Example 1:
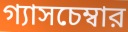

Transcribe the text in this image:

গ্যাসচেম্বার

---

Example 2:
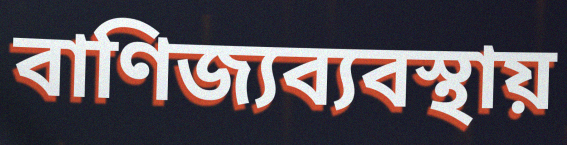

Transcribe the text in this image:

বাণিজ্যব্যবস্থায়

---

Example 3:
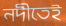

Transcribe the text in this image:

নদীতেই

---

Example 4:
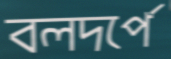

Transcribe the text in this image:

বলদর্পে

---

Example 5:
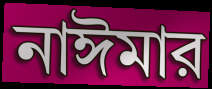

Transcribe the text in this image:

নাঈমার